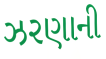
ઝરણાની